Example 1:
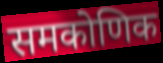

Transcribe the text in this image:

समकोणिक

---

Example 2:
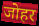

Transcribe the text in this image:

जोहर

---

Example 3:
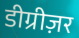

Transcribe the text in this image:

डीग्रीज़र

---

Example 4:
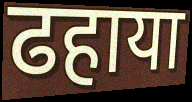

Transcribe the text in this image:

ढहाया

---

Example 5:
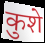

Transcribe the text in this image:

कुशे